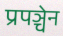
प्रपञ्चेन